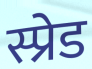
स्‍प्रेड